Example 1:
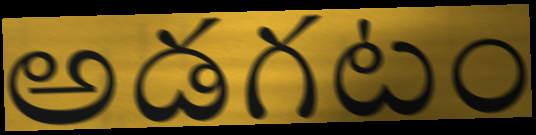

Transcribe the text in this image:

అడగటం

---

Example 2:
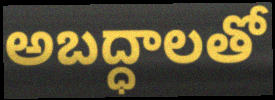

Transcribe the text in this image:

అబద్ధాలతో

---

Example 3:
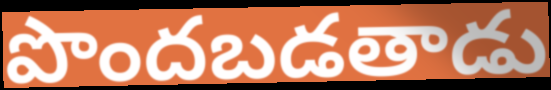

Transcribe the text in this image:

పొందబడతాడు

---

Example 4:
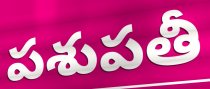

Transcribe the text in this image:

పశుపతీ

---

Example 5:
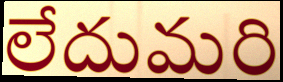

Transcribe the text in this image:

లేదుమరి